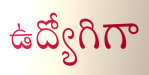
ఉద్యోగిగా